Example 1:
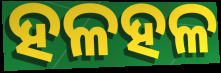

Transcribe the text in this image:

ହଳହଳ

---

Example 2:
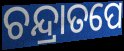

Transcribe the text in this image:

ଚନ୍ଦ୍ରାତପେ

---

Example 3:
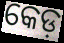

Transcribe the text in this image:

କେଡ଼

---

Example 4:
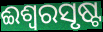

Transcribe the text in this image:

ଈଶ୍ୱରସୃଷ୍ଟ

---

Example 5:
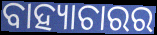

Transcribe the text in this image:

ବାହ୍ୟାଚାରର